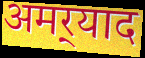
अमर्याद